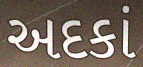
અદકાં